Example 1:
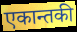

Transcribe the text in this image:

एकान्तकी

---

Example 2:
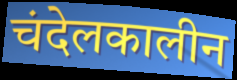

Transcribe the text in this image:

चंदेलकालीन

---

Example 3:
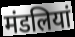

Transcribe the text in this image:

मंडलियां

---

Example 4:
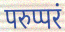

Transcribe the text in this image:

परुप्परं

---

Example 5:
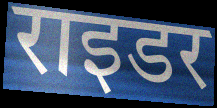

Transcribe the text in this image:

राइडर